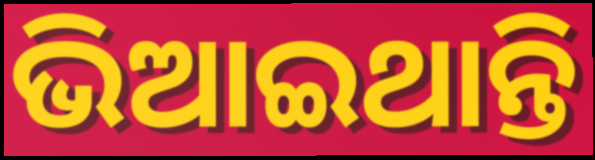
ଭିଆଇଥାନ୍ତି